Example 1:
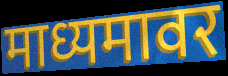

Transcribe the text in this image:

माध्यमावर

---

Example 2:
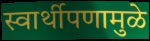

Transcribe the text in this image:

स्वार्थीपणामुळे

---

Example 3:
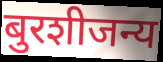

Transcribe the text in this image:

बुरशीजन्य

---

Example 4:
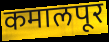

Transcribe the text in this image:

कमालपूर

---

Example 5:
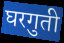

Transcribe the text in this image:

घरगुती